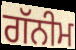
ਗੱਨੀਮ